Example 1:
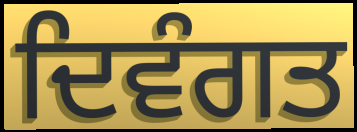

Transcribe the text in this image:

ਦਿਵੰਗਤ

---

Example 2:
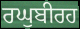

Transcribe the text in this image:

ਰਘੁਬੀਰਹ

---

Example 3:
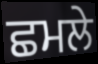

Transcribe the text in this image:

ਛਮਲੇ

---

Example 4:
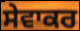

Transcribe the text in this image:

ਸੇਵਾਕਰ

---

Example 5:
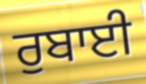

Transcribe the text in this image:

ਰੁਬਾਈ